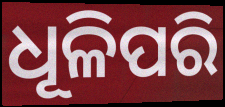
ଧୂଳିପରି